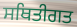
ਸਥਿਤੀਗਤ